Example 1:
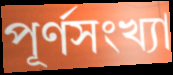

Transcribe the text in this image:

পূর্ণসংখ্যা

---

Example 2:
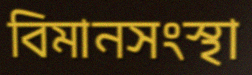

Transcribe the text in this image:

বিমানসংস্থা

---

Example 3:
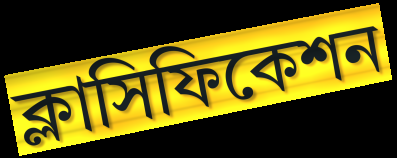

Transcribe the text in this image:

ক্লাসিফিকেশন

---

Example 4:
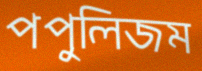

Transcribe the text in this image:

পপুলিজম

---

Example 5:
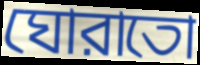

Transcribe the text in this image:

ঘোরাতো